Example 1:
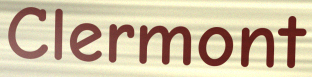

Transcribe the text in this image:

Clermont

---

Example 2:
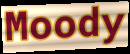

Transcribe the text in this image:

Moody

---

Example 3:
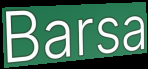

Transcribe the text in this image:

Barsa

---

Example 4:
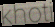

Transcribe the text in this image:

khoti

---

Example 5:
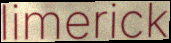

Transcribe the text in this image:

limerick